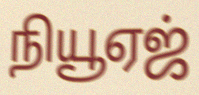
நியூஏஜ்